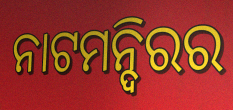
ନାଟମନ୍ଦିରର